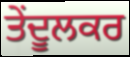
ਤੇਂਦੂਲਕਰ